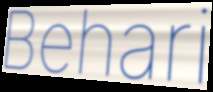
Behari